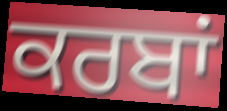
ਕਰਬਾਂ